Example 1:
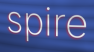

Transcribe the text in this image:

spire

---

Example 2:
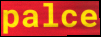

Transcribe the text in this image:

palce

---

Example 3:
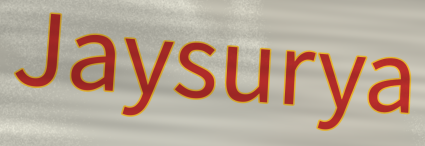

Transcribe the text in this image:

Jaysurya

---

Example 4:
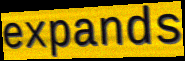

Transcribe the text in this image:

expands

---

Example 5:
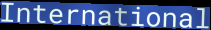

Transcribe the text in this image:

International